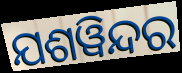
ଯଶୱିନ୍ଦର